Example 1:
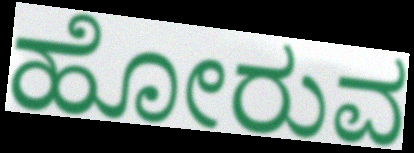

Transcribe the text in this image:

ಹೋರುವ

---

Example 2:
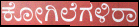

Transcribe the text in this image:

ಕೋಗಿಲೆಗಳಿರಾ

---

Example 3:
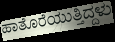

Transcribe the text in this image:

ಹಾತೊರೆಯುತ್ತಿದ್ದಳು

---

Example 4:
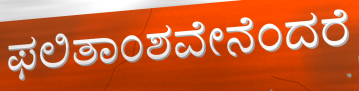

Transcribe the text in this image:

ಫಲಿತಾಂಶವೇನೆಂದರೆ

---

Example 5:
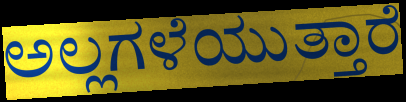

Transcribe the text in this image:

ಅಲ್ಲಗಳೆಯುತ್ತಾರೆ